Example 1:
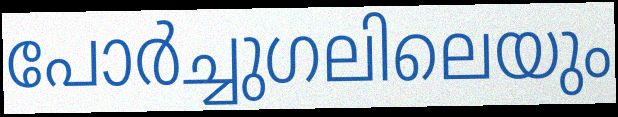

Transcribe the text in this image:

പോർച്ചുഗലിലെയും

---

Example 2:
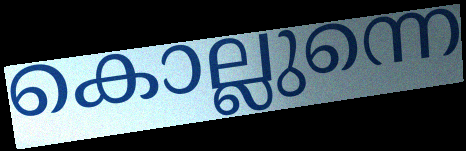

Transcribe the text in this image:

കൊല്ലുന്നെ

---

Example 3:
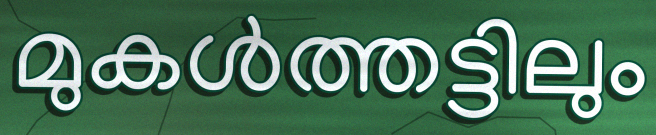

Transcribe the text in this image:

മുകൾത്തട്ടിലും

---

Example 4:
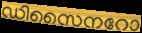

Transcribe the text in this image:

ഡിസൈനറോ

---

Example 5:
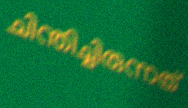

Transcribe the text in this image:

ചിന്തിച്ചിരുന്നത്